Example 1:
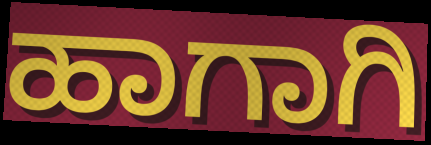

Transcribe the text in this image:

ಹಾಗಾಗಿ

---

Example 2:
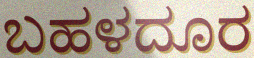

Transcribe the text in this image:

ಬಹಳದೂರ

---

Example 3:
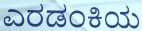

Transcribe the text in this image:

ಎರಡಂಕಿಯ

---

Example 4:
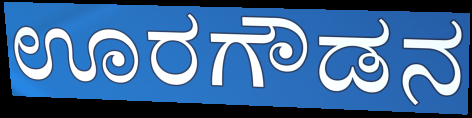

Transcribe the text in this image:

ಊರಗೌಡನ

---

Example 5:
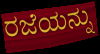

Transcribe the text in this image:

ರಜೆಯನ್ನು